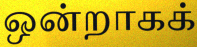
ஒன்றாகக்